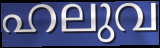
ഹലുവ